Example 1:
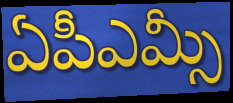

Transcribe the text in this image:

ఏపీఎమ్సీ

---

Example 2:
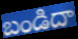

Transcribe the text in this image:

బండిదా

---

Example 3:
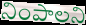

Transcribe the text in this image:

నింపాలని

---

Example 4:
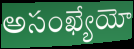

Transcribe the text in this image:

అసంఖ్యేయో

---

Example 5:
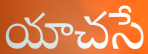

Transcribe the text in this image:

యాచసే